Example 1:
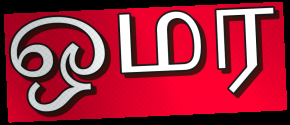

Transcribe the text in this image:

ஒமர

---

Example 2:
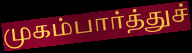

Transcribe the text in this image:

முகம்பார்த்துச்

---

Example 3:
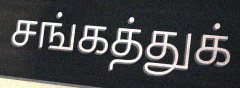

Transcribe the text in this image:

சங்கத்துக்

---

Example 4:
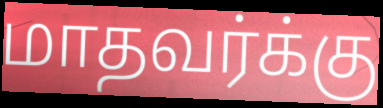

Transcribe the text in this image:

மாதவர்க்கு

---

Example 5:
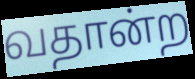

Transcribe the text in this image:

வதான்ற